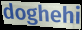
doghehi